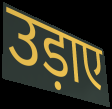
उड़ाए